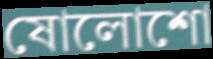
ষোলোশো